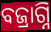
ବଜ୍ରାଗ୍ନି